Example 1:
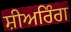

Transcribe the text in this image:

ਸ਼ੀਅਰਿੰਗ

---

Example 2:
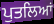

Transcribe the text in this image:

ਪੁਤਲਿਆਂ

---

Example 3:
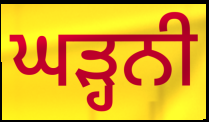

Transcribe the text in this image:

ਘੜ੍ਹਨੀ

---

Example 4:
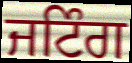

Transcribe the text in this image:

ਜਟਿੰਗ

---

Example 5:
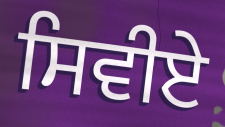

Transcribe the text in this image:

ਸਿਵੀਏ